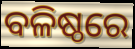
ବଳିଷ୍ଠରେ